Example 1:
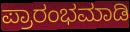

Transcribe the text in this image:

ಪ್ರಾರಂಭಮಾಡಿ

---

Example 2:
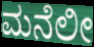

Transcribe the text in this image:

ಮನೆಲೀ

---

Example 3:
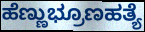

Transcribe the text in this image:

ಹೆಣ್ಣುಭ್ರೂಣಹತ್ಯೆ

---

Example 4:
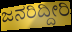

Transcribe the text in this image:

ಜನರಿದ್ದೀರಿ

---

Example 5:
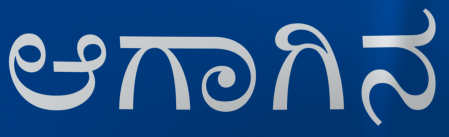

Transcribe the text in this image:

ಆಗಾಗಿನ